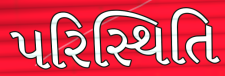
પરિસ્થિતિ